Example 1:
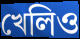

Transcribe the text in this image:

খেলিও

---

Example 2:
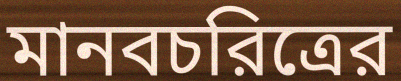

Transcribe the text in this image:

মানবচরিত্রের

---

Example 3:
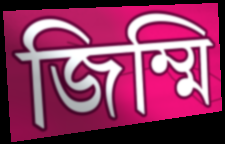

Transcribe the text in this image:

জিম্মি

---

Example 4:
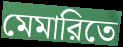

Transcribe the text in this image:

মেমারিতে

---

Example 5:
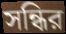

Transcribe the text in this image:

সন্ধির